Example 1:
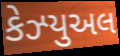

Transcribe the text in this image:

કેઝ્યુઅલ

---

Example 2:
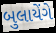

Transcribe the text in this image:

બુલાયેંગે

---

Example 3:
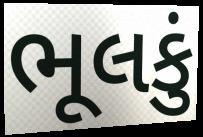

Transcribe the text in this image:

ભૂલકું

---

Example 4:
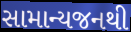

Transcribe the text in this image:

સામાન્યજનથી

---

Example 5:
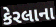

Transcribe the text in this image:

કેરલાના